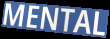
MENTAL